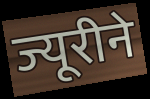
ज्यूरीने